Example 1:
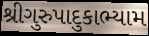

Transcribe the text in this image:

શ્રીગુરુપાદુકાભ્યામ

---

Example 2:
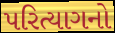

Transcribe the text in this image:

પરિત્યાગનો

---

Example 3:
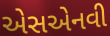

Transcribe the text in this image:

એસએનવી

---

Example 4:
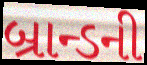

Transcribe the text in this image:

બ્રાન્ડની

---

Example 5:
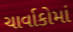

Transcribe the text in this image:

ચાર્વાકોમાં